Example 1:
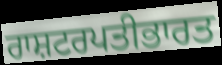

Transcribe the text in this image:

ਰਾਸ਼ਟਰਪਤੀਭਾਰਤ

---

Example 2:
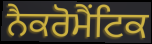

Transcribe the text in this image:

ਨੈਕਰੋਮੈਂਟਿਕ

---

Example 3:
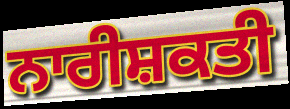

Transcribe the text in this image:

ਨਾਰੀਸ਼ਕਤੀ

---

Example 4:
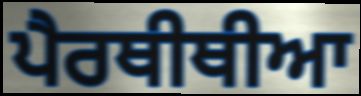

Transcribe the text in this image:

ਪੈਰਥੀਥੀਆ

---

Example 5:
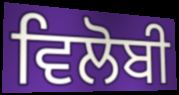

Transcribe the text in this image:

ਵਿਲੋਬੀ